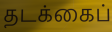
தடக்கைப்